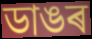
ডাঙৰ